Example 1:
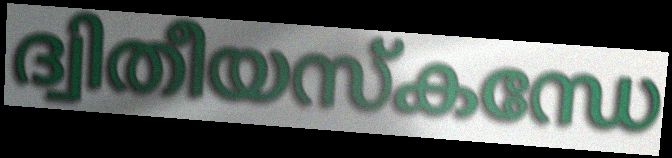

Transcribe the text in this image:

ദ്വിതീയസ്കന്ധേ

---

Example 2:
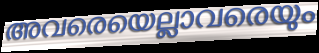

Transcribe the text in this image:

അവരെയെല്ലാവരെയും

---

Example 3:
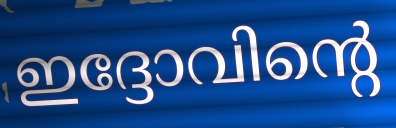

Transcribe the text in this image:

ഇദ്ദോവിന്റെ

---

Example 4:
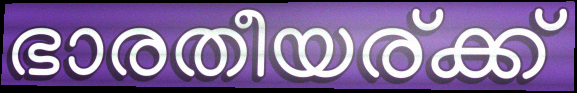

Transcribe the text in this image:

ഭാരതീയര്ക്ക്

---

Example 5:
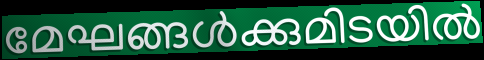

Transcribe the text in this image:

മേഘങ്ങൾക്കുമിടയിൽ